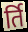
र्ति